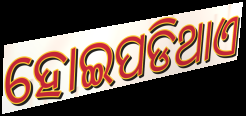
ହୋଇପଡିଥାଏ